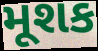
મૂશક